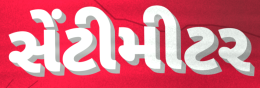
સેંટીમીટર